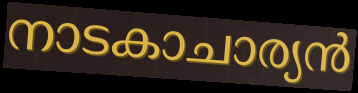
നാടകാചാര്യൻ